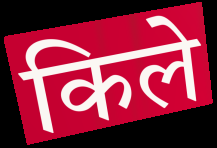
किले